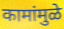
कामांमुळे